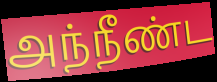
அந்நீண்ட